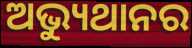
ଅଭ୍ୟୁଥାନର